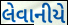
લેવાનીયે